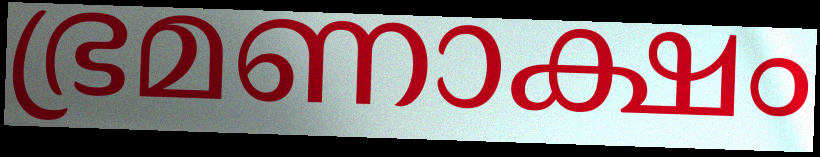
ഭ്രമണാക്ഷം